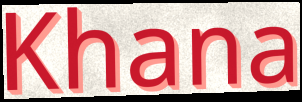
Khana